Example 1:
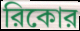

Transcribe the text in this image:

রিকোর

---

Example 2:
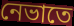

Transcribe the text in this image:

নেভাতে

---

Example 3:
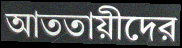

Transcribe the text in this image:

আততায়ীদের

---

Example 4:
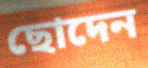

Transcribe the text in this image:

ছোদেন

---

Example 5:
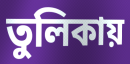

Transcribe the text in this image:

তুলিকায়